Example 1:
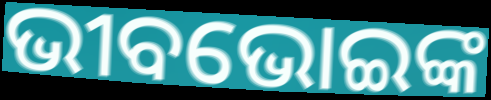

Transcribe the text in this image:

ଭୀବଭୋଇଙ୍କ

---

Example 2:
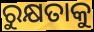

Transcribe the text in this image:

ରୁକ୍ଷତାକୁ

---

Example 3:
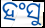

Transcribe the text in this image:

ହଂସୁ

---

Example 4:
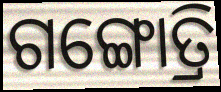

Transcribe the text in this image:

ଗଙ୍ଗୋତ୍ରି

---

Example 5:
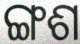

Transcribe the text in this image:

ଙ୍ଗଶ